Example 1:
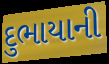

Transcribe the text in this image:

દુભાયાની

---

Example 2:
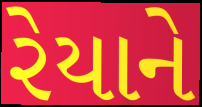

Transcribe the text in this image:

રેયાને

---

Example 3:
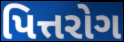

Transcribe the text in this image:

પિત્તરોગ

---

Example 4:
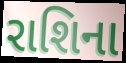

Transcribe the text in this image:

રાશિના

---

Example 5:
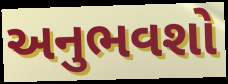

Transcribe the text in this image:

અનુભવશો